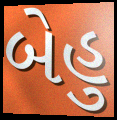
બેહુ